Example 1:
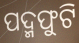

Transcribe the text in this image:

ପଦ୍ମଫୁଟି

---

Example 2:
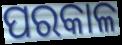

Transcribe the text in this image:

ପରକାଳ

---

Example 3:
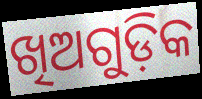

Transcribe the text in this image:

ଖିଅଗୁଡ଼ିକ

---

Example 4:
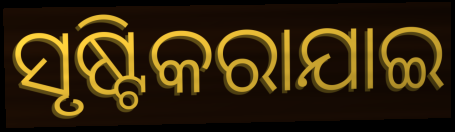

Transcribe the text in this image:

ସୃଷ୍ଟିକରାଯାଇ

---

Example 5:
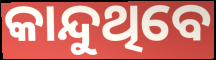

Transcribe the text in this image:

କାନ୍ଦୁଥିବେ